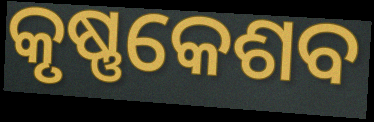
କୃଷ୍ଣକେଶବ